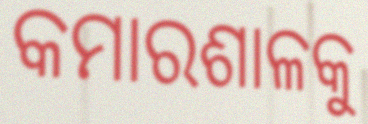
କମାରଶାଳକୁ